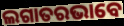
ଲଗାତରଭାବେ